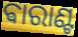
ଵାରାଣ୍ଟ